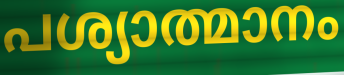
പശ്യാത്മാനം